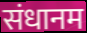
संधानम